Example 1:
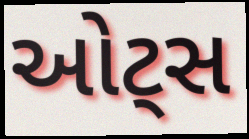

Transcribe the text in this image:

ઓટ્સ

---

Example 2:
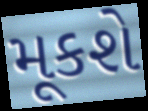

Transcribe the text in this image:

મૂકશે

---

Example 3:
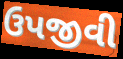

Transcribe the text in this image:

ઉપજીવી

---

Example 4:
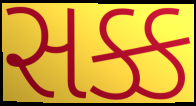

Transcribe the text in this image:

સક્ક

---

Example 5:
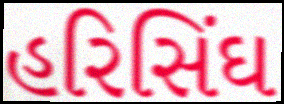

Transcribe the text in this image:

હરિસિંઘ